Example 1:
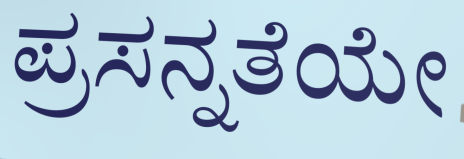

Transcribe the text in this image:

ಪ್ರಸನ್ನತೆಯೇ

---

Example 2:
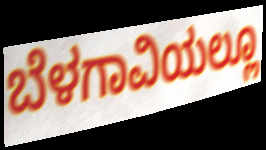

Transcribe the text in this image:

ಬೆಳಗಾವಿಯಲ್ಲೂ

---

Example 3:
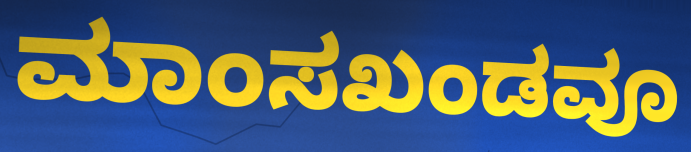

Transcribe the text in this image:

ಮಾಂಸಖಂಡವೂ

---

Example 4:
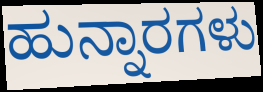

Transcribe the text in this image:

ಹುನ್ನಾರಗಳು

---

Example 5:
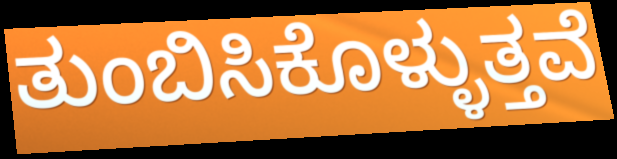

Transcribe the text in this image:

ತುಂಬಿಸಿಕೊಳ್ಳುತ್ತವೆ